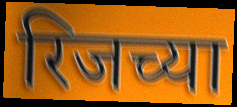
रिजच्या